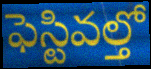
ఫెస్టివల్తో